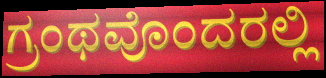
ಗ್ರಂಥವೊಂದರಲ್ಲಿ